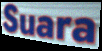
Suara